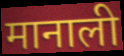
मानाली